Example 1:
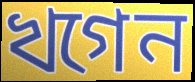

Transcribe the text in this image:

খগেন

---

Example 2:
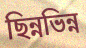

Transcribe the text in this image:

ছিন্নভিন্ন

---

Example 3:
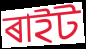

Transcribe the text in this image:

ৰাইট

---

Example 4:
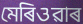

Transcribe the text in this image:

মেৰিওৱাৰ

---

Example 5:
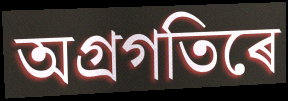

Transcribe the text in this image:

অগ্ৰগতিৰে